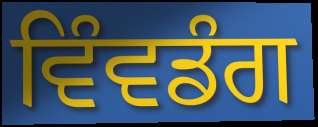
ਵਿੰਵਡੰਗ